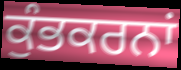
ਕੁੰਭਕਰਨਾਂ